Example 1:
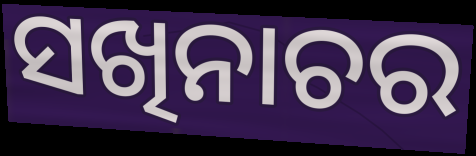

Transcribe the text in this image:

ସଖିନାଚର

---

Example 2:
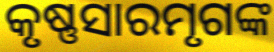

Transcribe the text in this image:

କୃଷ୍ଣସାରମୃଗଙ୍କ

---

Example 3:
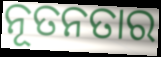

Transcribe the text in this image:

ନୂତନତାର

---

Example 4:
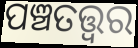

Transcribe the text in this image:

ପଞ୍ଚତତ୍ତ୍ୱର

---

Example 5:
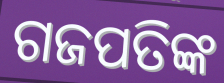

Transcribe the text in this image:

ଗଜପତିଙ୍କ